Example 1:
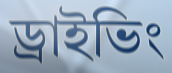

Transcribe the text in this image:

ড্ৰাইভিং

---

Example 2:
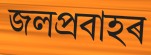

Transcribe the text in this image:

জলপ্ৰবাহৰ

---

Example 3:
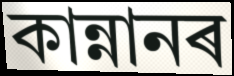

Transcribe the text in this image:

কান্নানৰ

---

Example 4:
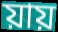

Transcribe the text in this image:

য়ায়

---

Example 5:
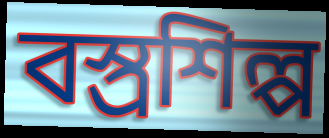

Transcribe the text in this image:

বস্ত্ৰশিল্প